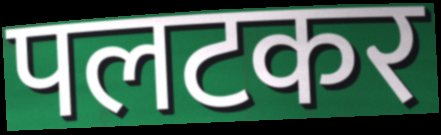
पलटकर